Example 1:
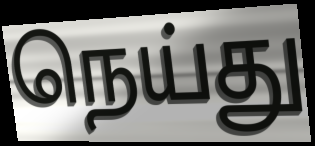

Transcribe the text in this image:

நெய்து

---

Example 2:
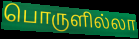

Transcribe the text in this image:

பொருளில்லா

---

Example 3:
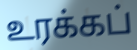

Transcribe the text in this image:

உரக்கப்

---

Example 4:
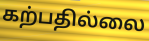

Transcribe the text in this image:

கற்பதில்லை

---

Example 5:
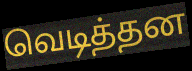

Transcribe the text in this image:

வெடித்தன